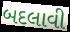
બદલાવી